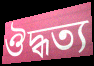
ঔদ্ধত্য